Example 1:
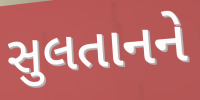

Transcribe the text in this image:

સુલતાનને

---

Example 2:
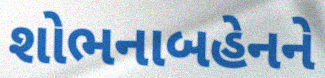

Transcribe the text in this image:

શોભનાબહેનને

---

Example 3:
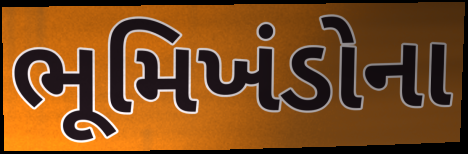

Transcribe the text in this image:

ભૂમિખંડોના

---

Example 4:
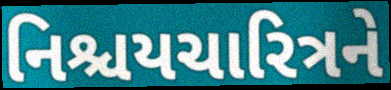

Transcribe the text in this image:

નિશ્ચયચારિત્રને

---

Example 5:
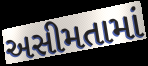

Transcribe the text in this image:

અસીમતામાં